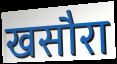
खसौरा